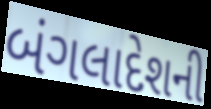
બંગલાદેશની